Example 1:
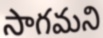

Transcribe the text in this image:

సాగమని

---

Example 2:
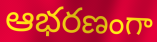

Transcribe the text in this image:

ఆభరణంగా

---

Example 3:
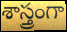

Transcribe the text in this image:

శాస్త్రంగా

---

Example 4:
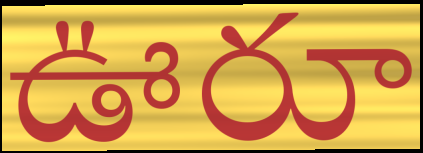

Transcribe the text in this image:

ఊరూ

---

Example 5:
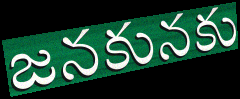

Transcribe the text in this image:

జనకునకు